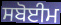
ਸਬੋਈਮ